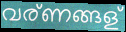
വര്ണങ്ങള്